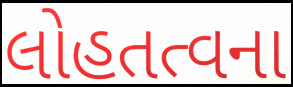
લોહતત્વના